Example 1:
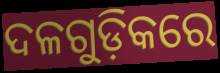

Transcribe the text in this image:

ଦଳଗୁଡ଼ିକରେ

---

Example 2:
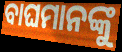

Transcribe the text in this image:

ବାଘମାନଙ୍କୁ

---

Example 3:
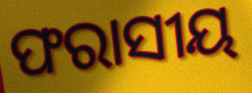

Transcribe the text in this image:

ଫରାସୀୟ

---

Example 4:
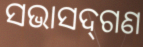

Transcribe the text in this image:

ସଭାସଦ୍‌ଗଣ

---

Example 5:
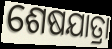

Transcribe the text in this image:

ଶେଷଯାତ୍ରା